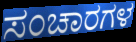
ಸಂಚಾರಗಳ